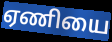
ஏணியை